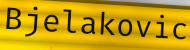
Bjelakovic